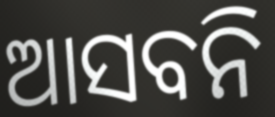
ଆସବନି